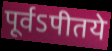
पूर्वऽपीतये